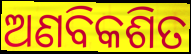
ଅଣବିକଶିତ